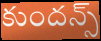
కుందన్స్